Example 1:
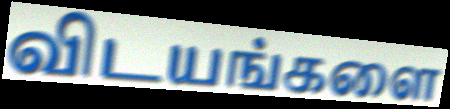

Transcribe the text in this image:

விடயங்களை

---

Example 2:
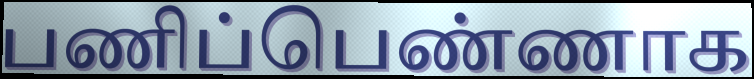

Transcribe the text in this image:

பணிப்பெண்ணாக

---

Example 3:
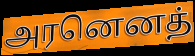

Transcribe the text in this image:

அரனெனத்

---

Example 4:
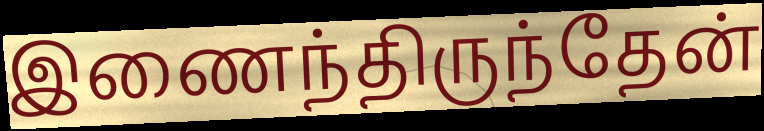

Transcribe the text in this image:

இணைந்திருந்தேன்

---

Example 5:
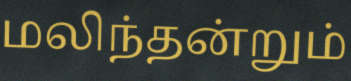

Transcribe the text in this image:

மலிந்தன்றும்